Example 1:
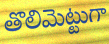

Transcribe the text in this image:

తొలిమెట్టుగా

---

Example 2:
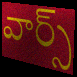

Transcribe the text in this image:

వార్స్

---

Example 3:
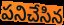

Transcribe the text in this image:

పనిచేసిన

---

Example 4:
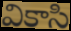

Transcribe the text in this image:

వికాసి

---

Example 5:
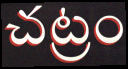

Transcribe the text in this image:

చట్రం